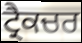
ਟ੍ਰੈਕਚਰ